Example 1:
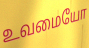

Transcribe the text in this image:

உவமையோ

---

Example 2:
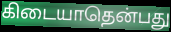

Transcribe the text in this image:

கிடையாதென்பது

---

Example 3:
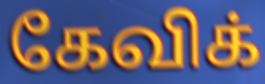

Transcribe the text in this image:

கேவிக்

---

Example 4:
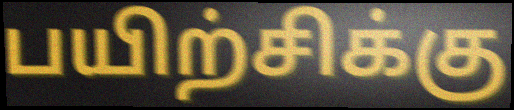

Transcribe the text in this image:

பயிற்சிக்கு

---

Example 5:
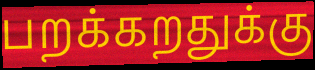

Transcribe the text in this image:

பறக்கறதுக்கு